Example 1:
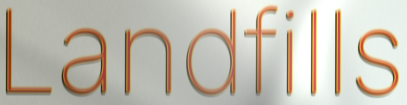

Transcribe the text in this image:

Landfills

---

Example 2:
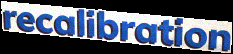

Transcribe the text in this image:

recalibration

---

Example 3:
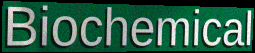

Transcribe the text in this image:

Biochemical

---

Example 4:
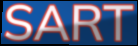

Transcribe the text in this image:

SART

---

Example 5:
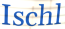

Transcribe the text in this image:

Ischl